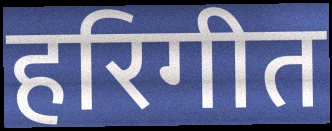
हरिगीत